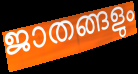
ജാതങ്ങളും